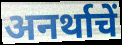
अनर्थाचें